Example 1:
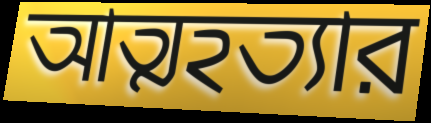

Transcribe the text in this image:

আত্মহত্যার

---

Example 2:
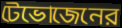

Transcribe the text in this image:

টেভোজেনের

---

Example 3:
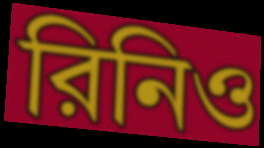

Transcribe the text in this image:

রিনিও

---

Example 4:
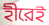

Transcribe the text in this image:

হীরেই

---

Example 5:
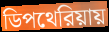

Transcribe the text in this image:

ডিপথেরিয়ায়